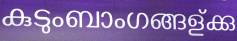
കുടുംബാംഗങ്ങള്ക്കു